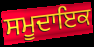
ਸਮੂਦਾਇਕ